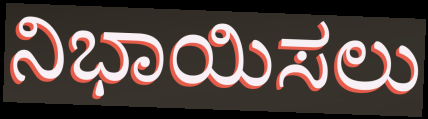
ನಿಭಾಯಿಸಲು